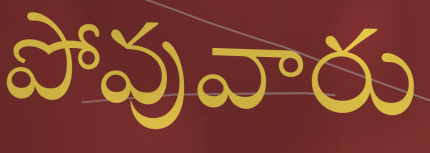
పోవువారు